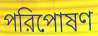
পরিপোষণ